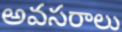
అవసరాలు